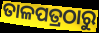
ତାଳପତ୍ରଠାରୁ